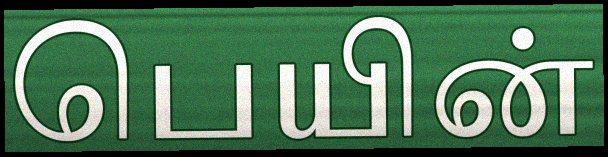
பெயின்